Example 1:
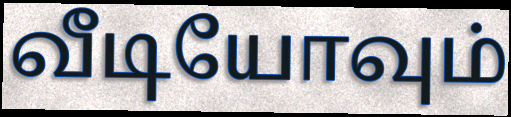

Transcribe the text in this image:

வீடியோவும்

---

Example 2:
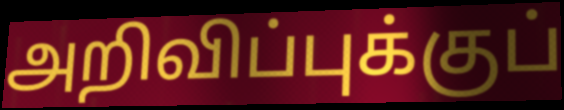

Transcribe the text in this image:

அறிவிப்புக்குப்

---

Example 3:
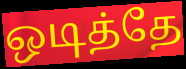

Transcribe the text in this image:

ஒடித்தே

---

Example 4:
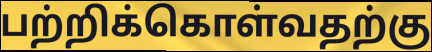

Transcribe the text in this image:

பற்றிக்கொள்வதற்கு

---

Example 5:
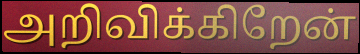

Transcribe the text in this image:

அறிவிக்கிறேன்